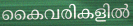
കൈവരികളിൽ